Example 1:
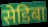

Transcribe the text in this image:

सेडिबा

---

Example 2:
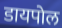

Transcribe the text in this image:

डायपोल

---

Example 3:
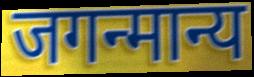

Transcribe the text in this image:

जगन्मान्य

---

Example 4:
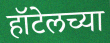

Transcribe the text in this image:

हॉटेलच्या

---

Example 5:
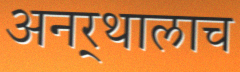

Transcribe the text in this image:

अनर्थालाच